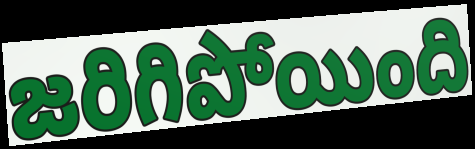
జరిగిపోయింది